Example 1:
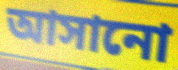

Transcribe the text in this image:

আসানো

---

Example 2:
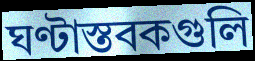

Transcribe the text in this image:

ঘণ্টাস্তবকগুলি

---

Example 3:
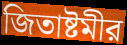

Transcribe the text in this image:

জিতাষ্টমীর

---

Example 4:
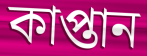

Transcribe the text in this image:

কাপ্তান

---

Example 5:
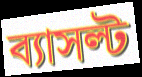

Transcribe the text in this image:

ব্যাসল্ট